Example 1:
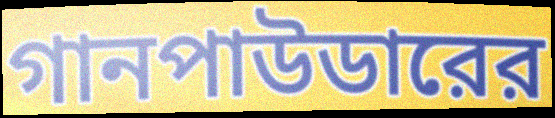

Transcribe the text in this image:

গানপাউডারের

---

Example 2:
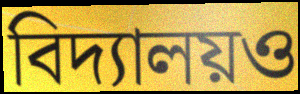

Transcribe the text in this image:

বিদ্যালয়ও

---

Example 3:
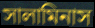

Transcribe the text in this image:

সালামিনাস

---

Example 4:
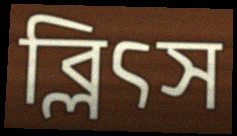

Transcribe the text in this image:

ব্লিৎস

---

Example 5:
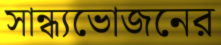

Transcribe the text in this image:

সান্ধ্যভোজনের